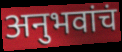
अनुभवांचं